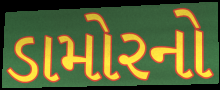
ડામોરનો